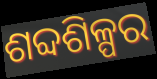
ଶବ୍ଦଶିଳ୍ପର